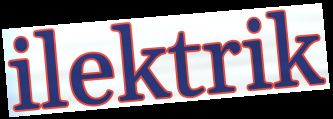
ilektrik